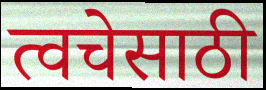
त्वचेसाठी